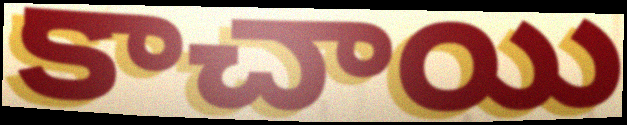
కాచాయి